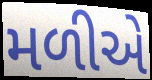
મળીએ